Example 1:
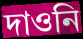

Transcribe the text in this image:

দাওনি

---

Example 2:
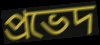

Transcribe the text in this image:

প্রভেদ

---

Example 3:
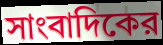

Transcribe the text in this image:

সাংবাদিকের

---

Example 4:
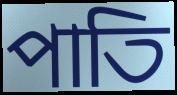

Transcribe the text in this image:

পাতি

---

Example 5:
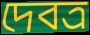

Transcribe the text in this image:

দেবত্র